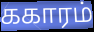
ககாரம்